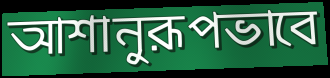
আশানুরূপভাবে